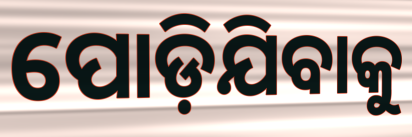
ପୋଡ଼ିଯିବାକୁ